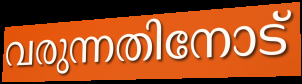
വരുന്നതിനോട്